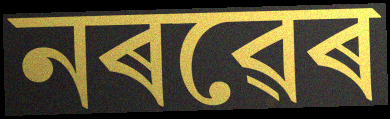
নৰৱেৰ